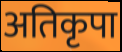
अतिकृपा